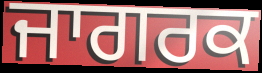
ਜਾਗਰਕ